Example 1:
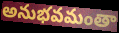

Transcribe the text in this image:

అనుభవమంతా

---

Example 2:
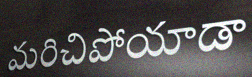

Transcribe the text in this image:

మరిచిపోయాడా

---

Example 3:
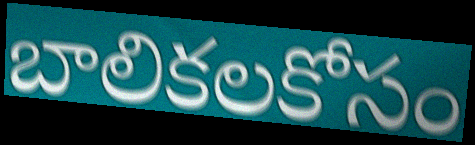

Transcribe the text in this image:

బాలికలకోసం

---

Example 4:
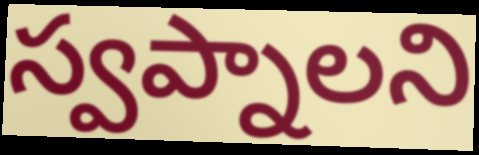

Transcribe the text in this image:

స్వప్నాలని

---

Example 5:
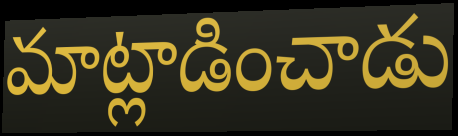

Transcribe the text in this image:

మాట్లాడించాడు